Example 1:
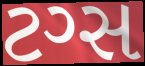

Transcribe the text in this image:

ટગ્સ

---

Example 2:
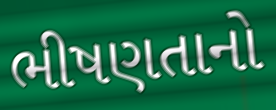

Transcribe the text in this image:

ભીષણતાનો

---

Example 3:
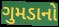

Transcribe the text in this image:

ગુમડાનો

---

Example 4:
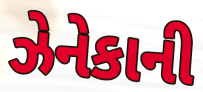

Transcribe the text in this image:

ઝેનેકાની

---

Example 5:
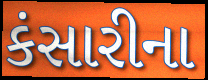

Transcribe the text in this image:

કંસારીના